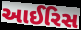
આઈરિસ